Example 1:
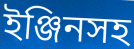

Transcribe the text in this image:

ইঞ্জিনসহ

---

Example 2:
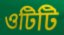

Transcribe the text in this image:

ওটিটি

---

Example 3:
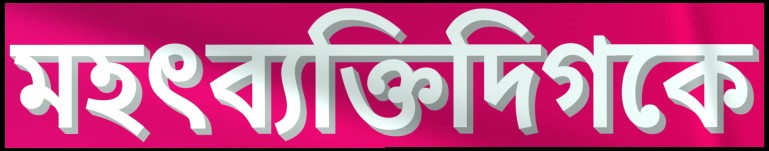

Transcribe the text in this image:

মহৎব্যক্তিদিগকে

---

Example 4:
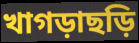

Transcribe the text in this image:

খাগড়াছড়ি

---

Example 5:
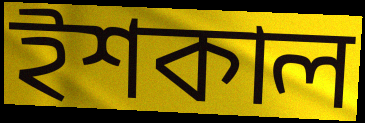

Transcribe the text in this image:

ইশকাল